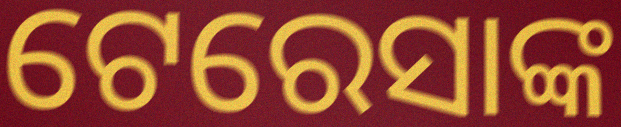
ଟେରେସାଙ୍କ